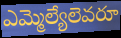
ఎమ్మెల్యేలెవరూ